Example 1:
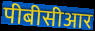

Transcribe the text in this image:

पीबीसीआर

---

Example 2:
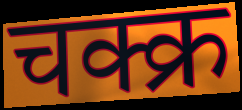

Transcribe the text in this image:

चक्क्र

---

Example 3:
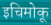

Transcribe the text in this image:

इचिमोकू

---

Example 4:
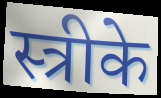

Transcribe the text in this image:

स्त्रीके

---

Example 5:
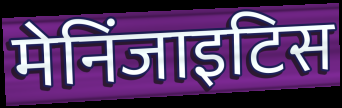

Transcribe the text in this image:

मेनिंजाइटिस